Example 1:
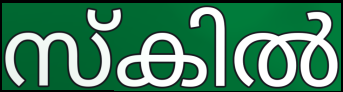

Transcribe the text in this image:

സ്കിൽ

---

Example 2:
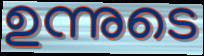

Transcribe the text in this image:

ഉന്നുടെ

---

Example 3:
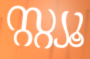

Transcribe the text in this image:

സ്റ്റ്യൂ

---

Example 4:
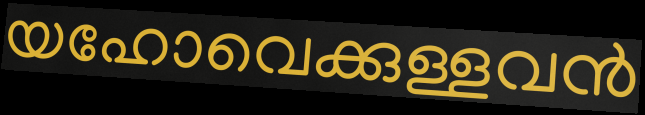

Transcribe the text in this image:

യഹോവെക്കുള്ളവൻ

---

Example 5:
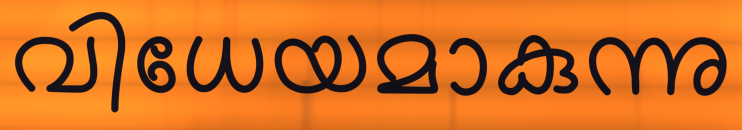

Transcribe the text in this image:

വിധേയമാകുന്നു